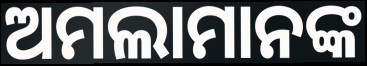
ଅମଲାମାନଙ୍କ